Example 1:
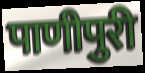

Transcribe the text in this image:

पाणीपुरी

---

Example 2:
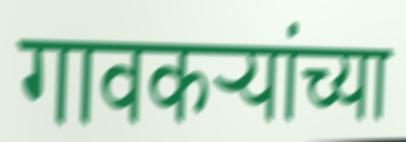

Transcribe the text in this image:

गावकर्‍यांच्या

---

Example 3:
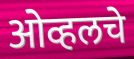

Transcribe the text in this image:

ओव्हलचे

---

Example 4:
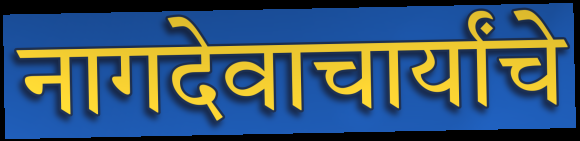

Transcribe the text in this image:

नागदेवाचार्यांचे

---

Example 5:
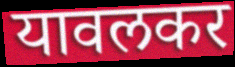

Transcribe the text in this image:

यावलकर